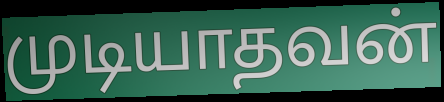
முடியாதவன்